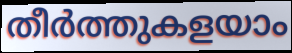
തീർത്തുകളയാം